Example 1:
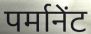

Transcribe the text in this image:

पर्मानेंट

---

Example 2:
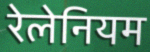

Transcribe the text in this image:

रेलेनियम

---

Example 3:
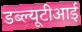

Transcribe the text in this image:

डब्ल्यूटीआई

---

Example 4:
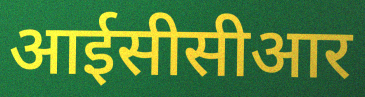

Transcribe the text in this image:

आईसीसीआर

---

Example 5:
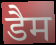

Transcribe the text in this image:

डैम